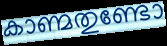
കാണ്മതുണ്ടോ